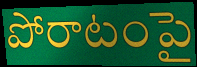
పోరాటంపై